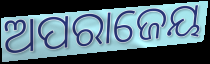
ଅପରାଜେୟ